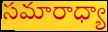
సమారాధ్యా